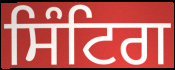
ਸਿੰਟਿਗ